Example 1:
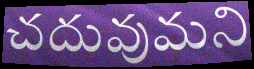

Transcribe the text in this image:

చదువుమని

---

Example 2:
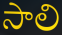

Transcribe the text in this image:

సాలి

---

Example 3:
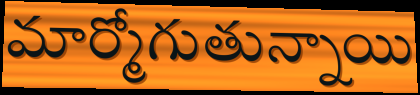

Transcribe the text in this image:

మార్మోగుతున్నాయి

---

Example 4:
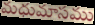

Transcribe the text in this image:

మధుమాసము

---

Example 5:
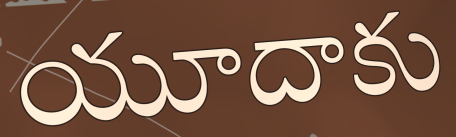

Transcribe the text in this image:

యూదాకు